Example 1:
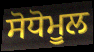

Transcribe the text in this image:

ਸੋਧੋਮੂਲ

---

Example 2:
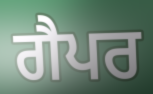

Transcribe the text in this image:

ਗੈਪਰ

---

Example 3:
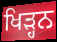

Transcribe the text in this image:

ਖਿੜ੍ਹਨ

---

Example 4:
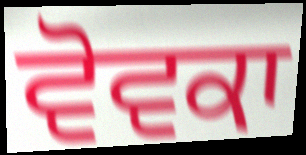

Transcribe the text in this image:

ਵੋਵਕਾ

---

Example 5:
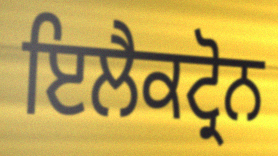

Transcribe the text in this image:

ਇਲੈਕਟ੍ਰੋਨ